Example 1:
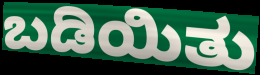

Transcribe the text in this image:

ಬಡಿಯಿತು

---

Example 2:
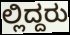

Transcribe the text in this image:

ಲ್ಲಿದ್ದರು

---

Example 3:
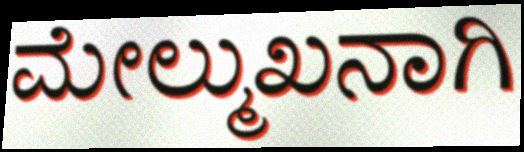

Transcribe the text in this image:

ಮೇಲ್ಮುಖನಾಗಿ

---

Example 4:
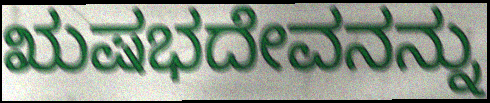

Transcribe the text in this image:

ಋಷಭದೇವನನ್ನು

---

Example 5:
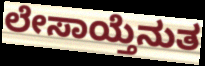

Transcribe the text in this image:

ಲೇಸಾಯ್ತೆನುತ